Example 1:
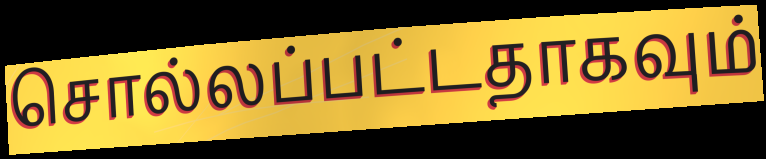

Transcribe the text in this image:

சொல்லப்பட்டதாகவும்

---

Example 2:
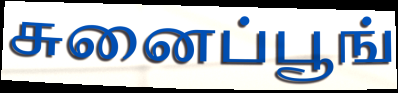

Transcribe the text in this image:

சுனைப்பூங்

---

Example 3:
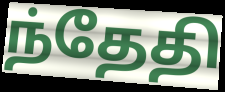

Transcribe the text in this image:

ந்தேதி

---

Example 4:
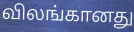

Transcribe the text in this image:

விலங்கானது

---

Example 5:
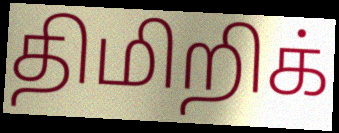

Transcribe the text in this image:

திமிறிக்